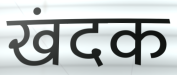
खंदक